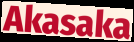
Akasaka